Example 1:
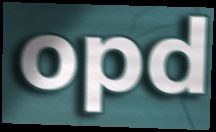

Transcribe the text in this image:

opd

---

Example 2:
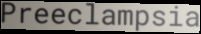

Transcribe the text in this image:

Preeclampsia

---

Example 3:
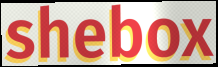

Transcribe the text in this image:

shebox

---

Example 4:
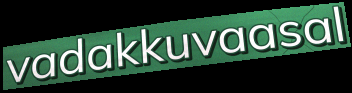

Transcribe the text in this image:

vadakkuvaasal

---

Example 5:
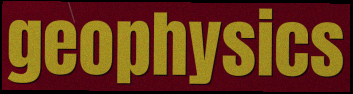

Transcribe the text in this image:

geophysics